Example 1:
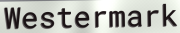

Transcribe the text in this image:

Westermark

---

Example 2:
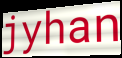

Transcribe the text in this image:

jyhan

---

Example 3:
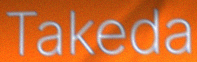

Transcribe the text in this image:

Takeda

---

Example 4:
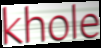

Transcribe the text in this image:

khole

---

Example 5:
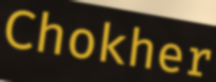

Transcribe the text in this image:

Chokher